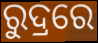
ରୁଦ୍ରରେ